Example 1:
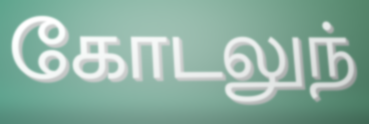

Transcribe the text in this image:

கோடலுந்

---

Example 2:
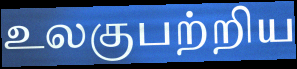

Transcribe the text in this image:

உலகுபற்றிய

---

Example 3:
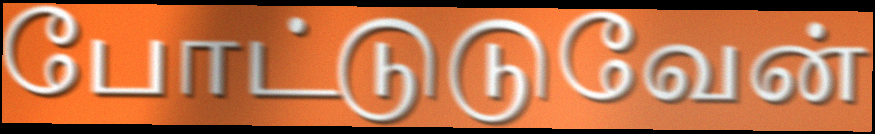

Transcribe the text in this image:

போட்டுடுவேன்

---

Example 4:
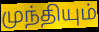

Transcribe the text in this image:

முந்தியும்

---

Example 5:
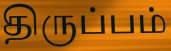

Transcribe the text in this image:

திருப்பம்